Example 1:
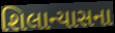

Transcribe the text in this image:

શિલાન્યાસના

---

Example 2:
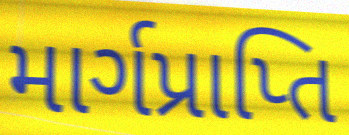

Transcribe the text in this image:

માર્ગપ્રાપ્તિ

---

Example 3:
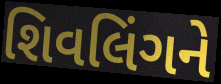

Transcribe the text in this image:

શિવલિંગને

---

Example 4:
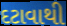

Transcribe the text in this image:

દટાવાથી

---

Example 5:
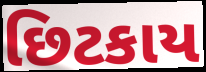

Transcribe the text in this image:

છિટકાય